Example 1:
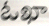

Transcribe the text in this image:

ఓఖా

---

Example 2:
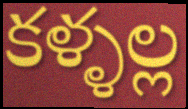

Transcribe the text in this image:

కళ్ళల్ల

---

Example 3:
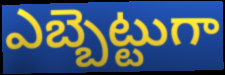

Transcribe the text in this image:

ఎబ్బెట్టుగా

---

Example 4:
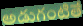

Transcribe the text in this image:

అడుగంటితే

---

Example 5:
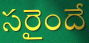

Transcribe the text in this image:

సరైందే